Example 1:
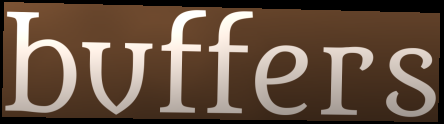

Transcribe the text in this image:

buffers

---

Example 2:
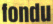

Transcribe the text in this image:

fondu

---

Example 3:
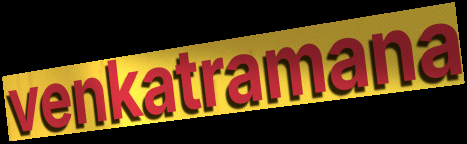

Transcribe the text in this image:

venkatramana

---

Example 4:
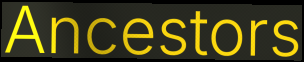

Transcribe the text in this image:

Ancestors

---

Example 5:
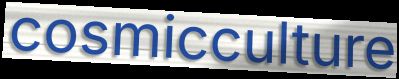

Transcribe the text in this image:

cosmicculture